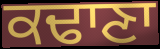
ਕਢਾਣਾ